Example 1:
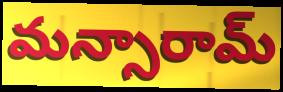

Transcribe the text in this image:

మన్సారామ్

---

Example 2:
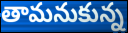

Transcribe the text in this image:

తామనుకున్న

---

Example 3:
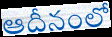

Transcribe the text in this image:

ఆదీనంలో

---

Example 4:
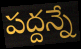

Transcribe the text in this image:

పద్దన్నే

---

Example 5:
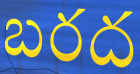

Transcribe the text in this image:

బరద